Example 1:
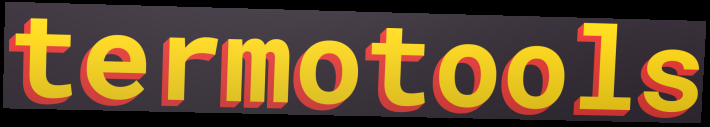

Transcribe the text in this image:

termotools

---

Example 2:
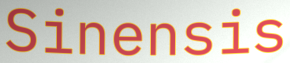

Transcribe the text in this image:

Sinensis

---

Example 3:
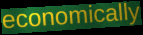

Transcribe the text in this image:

economically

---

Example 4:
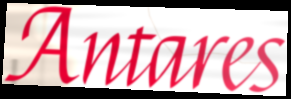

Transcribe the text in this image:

Antares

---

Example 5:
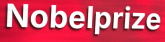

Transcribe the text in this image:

Nobelprize